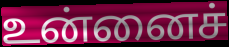
உன்னைச்